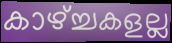
കാഴ്ച്ചകളല്ല